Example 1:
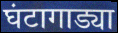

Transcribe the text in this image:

घंटागाड्या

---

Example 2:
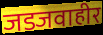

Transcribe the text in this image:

जडजवाहीर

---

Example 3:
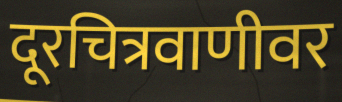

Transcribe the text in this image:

दूरचित्रवाणीवर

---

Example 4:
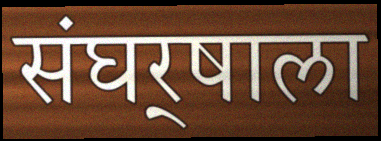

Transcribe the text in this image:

संघर्षाला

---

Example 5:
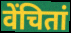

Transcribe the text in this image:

वेंचितां